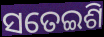
ସତେଇଶି